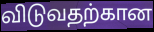
விடுவதற்கான